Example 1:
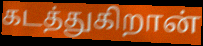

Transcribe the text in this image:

கடத்துகிறான்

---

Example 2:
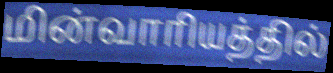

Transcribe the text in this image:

மின்வாரியத்தில்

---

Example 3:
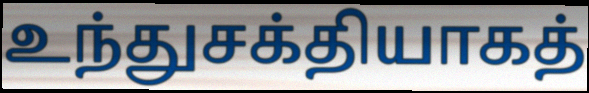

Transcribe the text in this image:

உந்துசக்தியாகத்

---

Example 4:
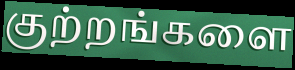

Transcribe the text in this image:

குற்றங்களை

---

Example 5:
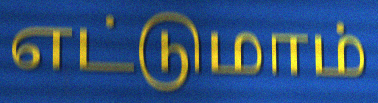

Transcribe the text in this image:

எட்டுமாம்